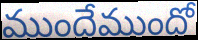
ముందేముందో